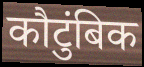
कौटुंबिक